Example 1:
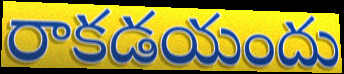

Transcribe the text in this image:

రాకడయందు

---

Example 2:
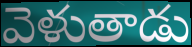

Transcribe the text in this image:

వెళుతాడు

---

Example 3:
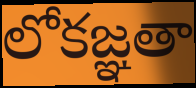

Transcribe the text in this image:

లోకజ్ఞతా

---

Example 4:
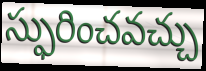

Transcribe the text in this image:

స్ఫురించవచ్చు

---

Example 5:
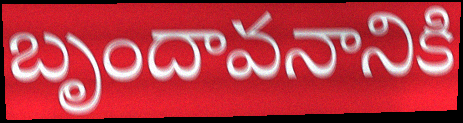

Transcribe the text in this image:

బృందావనానికి